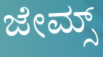
ಜೇಮ್ಸ್